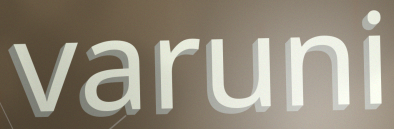
varuni